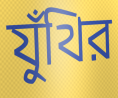
যুঁথির